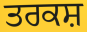
ਤਰਕਸ਼